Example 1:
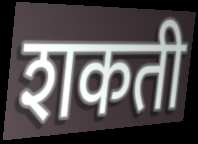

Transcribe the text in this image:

शकती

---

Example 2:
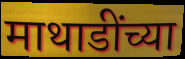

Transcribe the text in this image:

माथाडींच्या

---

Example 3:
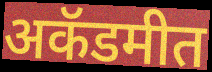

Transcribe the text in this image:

अकॅडमीत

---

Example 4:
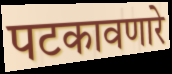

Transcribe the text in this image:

पटकावणारे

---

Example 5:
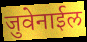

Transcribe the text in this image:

जुवेनाईल